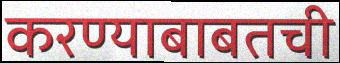
करण्याबाबतची